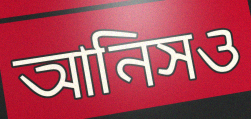
আনিসও